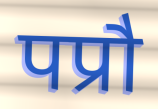
पप्रौ